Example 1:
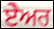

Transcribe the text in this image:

ਏੇਅਰ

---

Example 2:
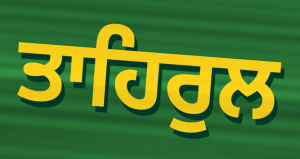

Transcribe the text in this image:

ਤਾਹਿਰੁਲ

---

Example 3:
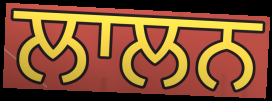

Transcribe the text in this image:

ਲਾਲਨ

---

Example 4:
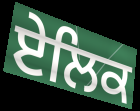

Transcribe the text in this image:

ਏਲਿਕ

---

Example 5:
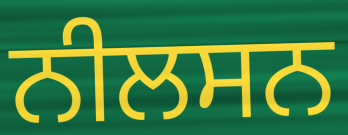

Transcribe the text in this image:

ਨੀਲਸਨ